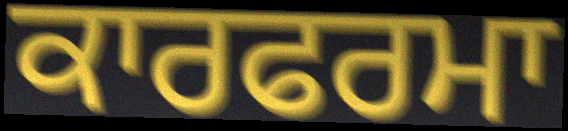
ਕਾਰਫਰਮਾ